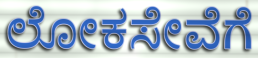
ಲೋಕಸೇವೆಗೆ